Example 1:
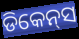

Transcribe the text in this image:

ଡିକେନ୍‌ସ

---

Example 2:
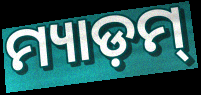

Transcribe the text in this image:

ମ୍ୟାଡ଼ମ୍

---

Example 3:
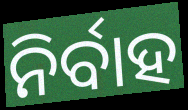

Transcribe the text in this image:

ନିର୍ବାହ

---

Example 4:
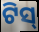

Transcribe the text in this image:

ଟିସ୍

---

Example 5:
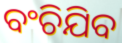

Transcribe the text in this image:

ବଂଚିଯିବ